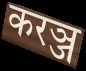
करञ्ज